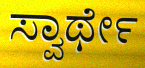
ಸ್ವಾರ್ಥೇ